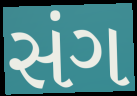
સંગ